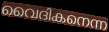
വൈദികനെന്ന